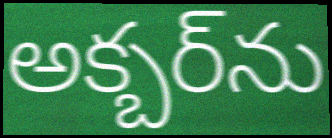
అక్బర్‌ను